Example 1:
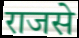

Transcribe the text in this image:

राजसे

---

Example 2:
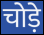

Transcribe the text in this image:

चोड़े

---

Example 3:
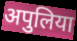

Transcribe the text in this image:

अपुलिया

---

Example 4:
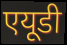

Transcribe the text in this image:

एयूडी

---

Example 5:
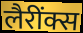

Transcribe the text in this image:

लैरींक्स